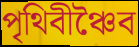
পৃথিবীঞ্চৈব